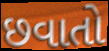
છવાતો